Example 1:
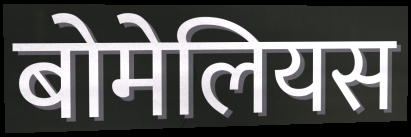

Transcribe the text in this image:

बोमेलियस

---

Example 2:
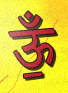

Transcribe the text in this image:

ऊँ॒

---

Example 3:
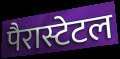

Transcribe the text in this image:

पैरास्टेटल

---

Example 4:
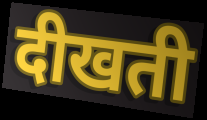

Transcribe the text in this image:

दीखती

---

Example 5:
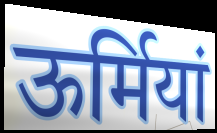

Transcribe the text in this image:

ऊर्मियां